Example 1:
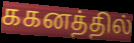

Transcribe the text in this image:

ககனத்தில்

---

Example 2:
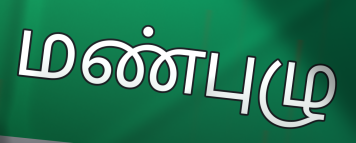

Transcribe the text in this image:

மண்புழு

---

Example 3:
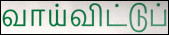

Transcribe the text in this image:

வாய்விட்டுப்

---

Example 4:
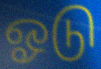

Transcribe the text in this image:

ஓடு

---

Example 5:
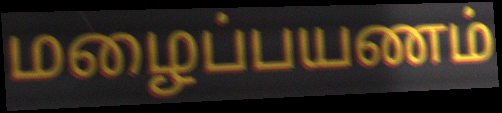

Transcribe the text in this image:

மழைப்பயணம்